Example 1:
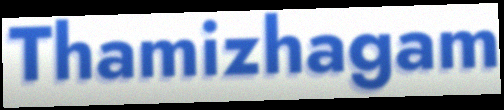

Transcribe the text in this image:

Thamizhagam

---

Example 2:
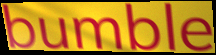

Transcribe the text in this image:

bumble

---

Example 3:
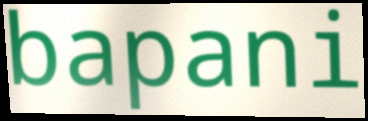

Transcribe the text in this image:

bapani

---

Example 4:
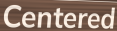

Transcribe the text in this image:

Centered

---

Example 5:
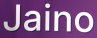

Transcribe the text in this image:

Jaino